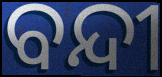
ବନ୍ଦୀ